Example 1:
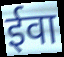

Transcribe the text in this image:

ईवा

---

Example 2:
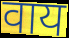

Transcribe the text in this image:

वाय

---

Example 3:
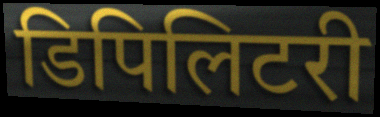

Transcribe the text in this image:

डिपिलिटरी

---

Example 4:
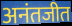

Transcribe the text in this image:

अनंतजीत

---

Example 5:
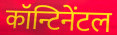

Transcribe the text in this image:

कॉन्टिनेंटल